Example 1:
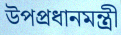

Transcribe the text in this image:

উপপ্রধানমন্ত্রী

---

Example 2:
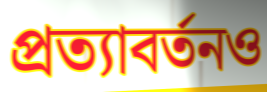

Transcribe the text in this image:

প্রত্যাবর্তনও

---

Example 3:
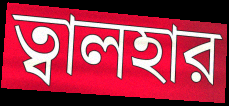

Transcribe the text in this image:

ত্বালহার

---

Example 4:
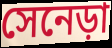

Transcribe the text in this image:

সেনেড়া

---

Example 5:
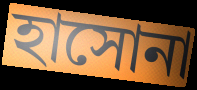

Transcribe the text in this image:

হাসোনা